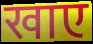
खाए